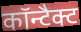
कॉन्टैक्ट